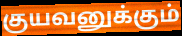
குயவனுக்கும்